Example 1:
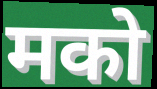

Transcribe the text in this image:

मको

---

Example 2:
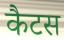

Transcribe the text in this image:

कैटस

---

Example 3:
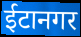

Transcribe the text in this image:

ईटानगर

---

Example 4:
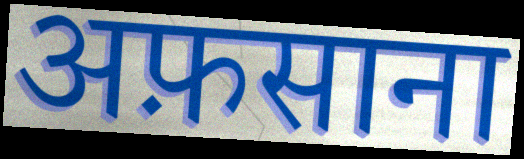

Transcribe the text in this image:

अफ़साना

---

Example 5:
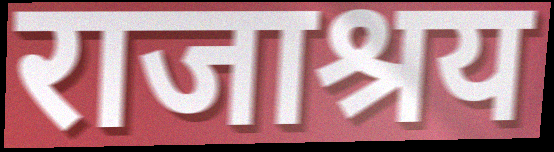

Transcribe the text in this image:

राजाश्रय